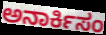
ಅನಾರ್ಕಿಸಂ